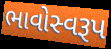
ભાવોસ્વરૂપ